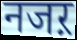
नजऱ